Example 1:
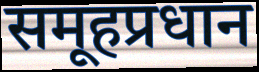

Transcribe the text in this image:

समूहप्रधान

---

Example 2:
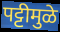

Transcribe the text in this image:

पट्टीमुळे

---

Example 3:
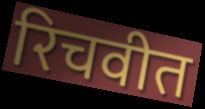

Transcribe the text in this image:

रिचवीत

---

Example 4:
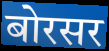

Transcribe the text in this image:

बोरसर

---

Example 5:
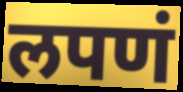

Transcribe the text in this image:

लपणं